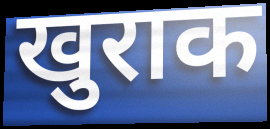
खुराक